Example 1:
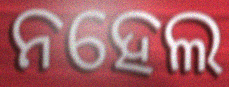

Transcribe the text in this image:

ନହେଲ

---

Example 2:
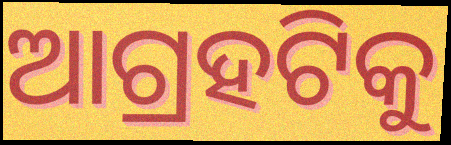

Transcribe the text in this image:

ଆଗ୍ରହଟିକୁ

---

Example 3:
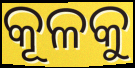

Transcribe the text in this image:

କୂଳକୁ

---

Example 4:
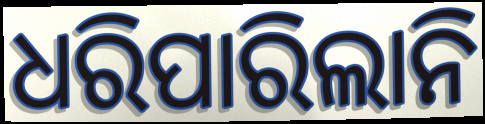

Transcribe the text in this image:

ଧରିପାରିଲାନି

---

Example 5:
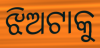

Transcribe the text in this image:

ଝିଅଟାକୁ